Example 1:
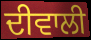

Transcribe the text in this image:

ਦੀਵਾਲੀ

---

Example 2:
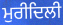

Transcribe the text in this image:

ਮੁਰੀਦਿਲੀ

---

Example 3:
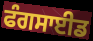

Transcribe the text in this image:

ਫੰਗਸਾਈਡ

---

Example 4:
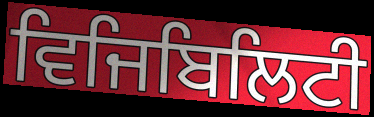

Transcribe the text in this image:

ਵਿਜਿਬਿਲਿਟੀ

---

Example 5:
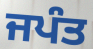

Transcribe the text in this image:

ਜਪੰਤ